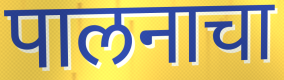
पालनाचा